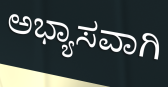
ಅಭ್ಯಾಸವಾಗಿ